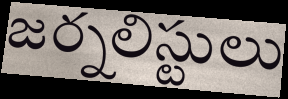
జర్నలిస్టులు